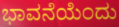
ಭಾವನೆಯೆಂದು